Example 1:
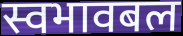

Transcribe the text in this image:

स्वभावबल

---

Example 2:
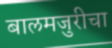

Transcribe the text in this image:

बालमजुरीचा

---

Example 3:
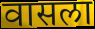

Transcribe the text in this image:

वासला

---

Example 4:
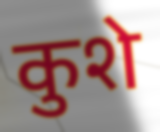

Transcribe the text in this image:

कुशे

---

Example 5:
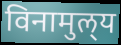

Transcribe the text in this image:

विनामुल्य